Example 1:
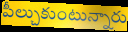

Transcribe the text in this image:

పీల్చుకుంటున్నారు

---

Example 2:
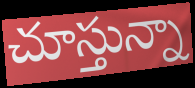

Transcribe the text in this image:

చూస్తున్నా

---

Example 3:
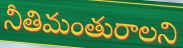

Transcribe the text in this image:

నీతిమంతురాలని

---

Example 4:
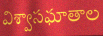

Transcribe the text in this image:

విశ్వాసఘాతాల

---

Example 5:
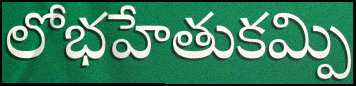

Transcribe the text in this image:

లోభహేతుకమ్పి